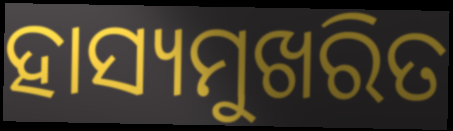
ହାସ୍ୟମୁଖରିତ